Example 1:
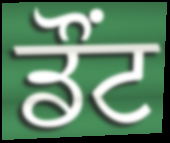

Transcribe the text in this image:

ਡੌਂਟ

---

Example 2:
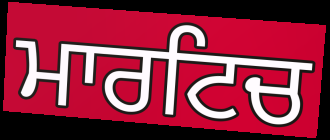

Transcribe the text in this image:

ਮਾਰਟਿਚ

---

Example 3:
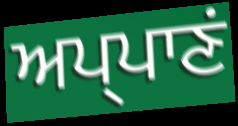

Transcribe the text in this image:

ਅਪ੍ਪਾਣਂ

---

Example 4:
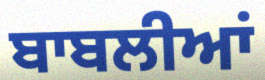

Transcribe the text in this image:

ਬਾਬਲੀਆਂ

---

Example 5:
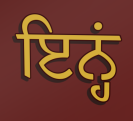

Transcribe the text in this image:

ਇਨ੍ਹਂ